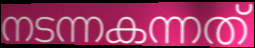
നടന്നകന്നത്